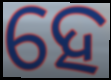
ହେ